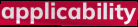
applicability